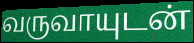
வருவாயுடன்